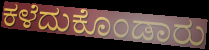
ಕಳೆದುಕೊಂಡಾರು